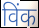
विंक